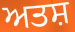
ਅਤਸ਼